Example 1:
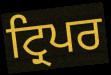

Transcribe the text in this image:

ਟ੍ਰਿਪਰ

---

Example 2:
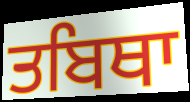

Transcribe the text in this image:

ਤਬਿਥਾ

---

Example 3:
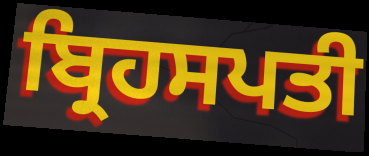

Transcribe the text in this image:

ਬ੍ਰਿਹਸਪਤੀ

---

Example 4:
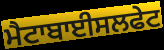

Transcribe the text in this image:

ਮੈਟਾਬਾਈਸਲਫੇਟ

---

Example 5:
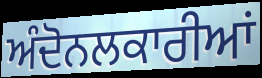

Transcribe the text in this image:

ਅੰਦੋਨਲਕਾਰੀਆਂ